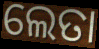
ଲେତା